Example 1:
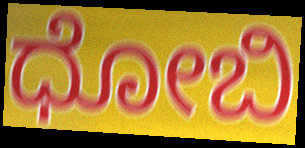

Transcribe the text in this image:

ಧೋಬಿ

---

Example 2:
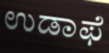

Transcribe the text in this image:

ಉಡಾಫೆ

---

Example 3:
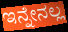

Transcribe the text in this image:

ಇನ್ನೇನಲ್ಲ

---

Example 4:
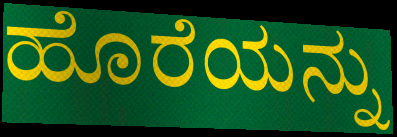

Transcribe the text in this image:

ಹೊರೆಯನ್ನು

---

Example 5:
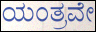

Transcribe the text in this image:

ಯಂತ್ರವೇ